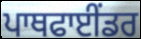
ਪਾਥਫਾਈਂਡਰ